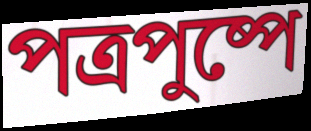
পত্রপুষ্পে